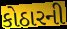
કોઠારની